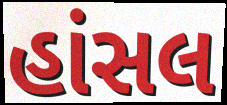
હાંસલ